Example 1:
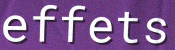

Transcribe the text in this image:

effets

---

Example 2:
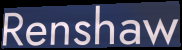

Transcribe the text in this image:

Renshaw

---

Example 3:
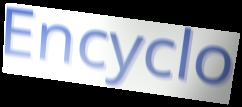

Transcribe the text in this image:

Encyclo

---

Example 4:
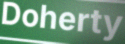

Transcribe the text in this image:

Doherty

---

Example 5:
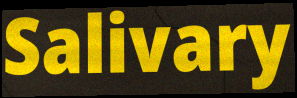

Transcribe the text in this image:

Salivary